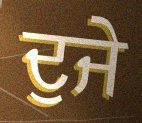
ਦੁਜੇ